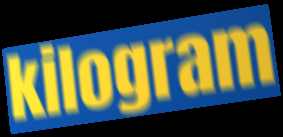
kilogram